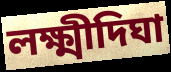
লক্ষ্মীদিঘা